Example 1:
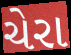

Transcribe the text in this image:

ચેરા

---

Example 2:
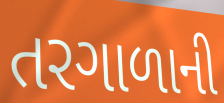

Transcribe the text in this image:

તરગાળાની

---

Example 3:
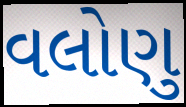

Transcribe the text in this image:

વલોણુ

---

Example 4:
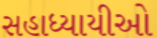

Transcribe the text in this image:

સહાધ્યાયીઓ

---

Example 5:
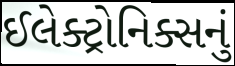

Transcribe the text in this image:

ઈલેક્ટ્રોનિક્સનું